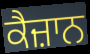
ਕੈਜ਼ਾਨ